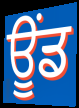
ਊਂਡ